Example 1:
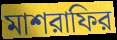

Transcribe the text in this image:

মাশরাফির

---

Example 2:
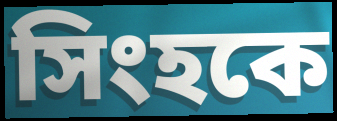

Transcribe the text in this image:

সিংহকে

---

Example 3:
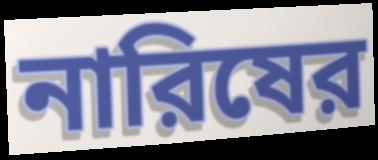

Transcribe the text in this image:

নারিষের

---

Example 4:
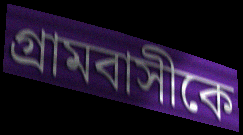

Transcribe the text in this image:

গ্রামবাসীকে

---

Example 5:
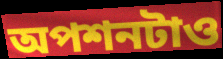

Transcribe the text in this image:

অপশনটাও